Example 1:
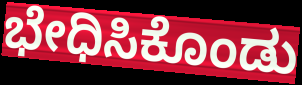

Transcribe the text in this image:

ಭೇಧಿಸಿಕೊಂಡು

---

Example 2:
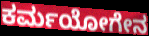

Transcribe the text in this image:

ಕರ್ಮಯೋಗೇನ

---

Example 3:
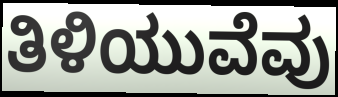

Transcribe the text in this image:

ತಿಳಿಯುವೆವು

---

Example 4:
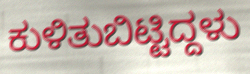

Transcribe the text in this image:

ಕುಳಿತುಬಿಟ್ಟಿದ್ದಳು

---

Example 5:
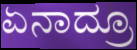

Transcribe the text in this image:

ಏನಾದ್ರೂ